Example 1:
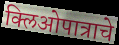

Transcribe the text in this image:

क्लिओपात्राचे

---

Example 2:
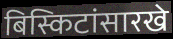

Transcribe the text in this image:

बिस्किटांसारखे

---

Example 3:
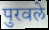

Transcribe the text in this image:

पुरवले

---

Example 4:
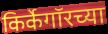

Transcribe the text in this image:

किर्केगॉरच्या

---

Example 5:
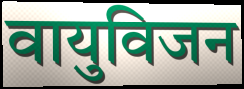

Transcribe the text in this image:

वायुविजन